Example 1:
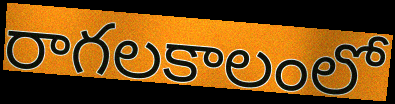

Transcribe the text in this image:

రాగలకాలంలో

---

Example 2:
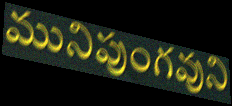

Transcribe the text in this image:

మునిపుంగవుని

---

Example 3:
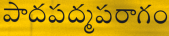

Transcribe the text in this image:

పాదపద్మపరాగం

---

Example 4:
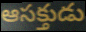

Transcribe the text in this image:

ఆసక్తుడు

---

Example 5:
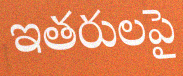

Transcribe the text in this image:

ఇతరులపై